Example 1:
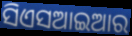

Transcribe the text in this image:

ସିଏସଆଇଆର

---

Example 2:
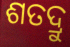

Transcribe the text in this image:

ଶତଦ୍ରୁ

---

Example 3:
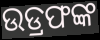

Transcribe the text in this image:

ଉଡ୍ରଫଙ୍କ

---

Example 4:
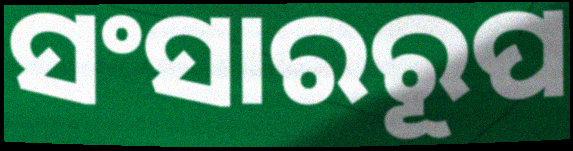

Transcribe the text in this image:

ସଂସାରରୂପ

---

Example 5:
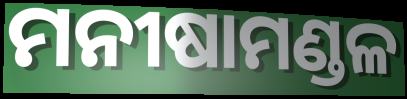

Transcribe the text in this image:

ମନୀଷାମଣ୍ଡଳ